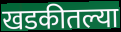
खडकीतल्या